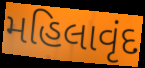
મહિલાવૃંદ